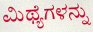
ಮಿಥ್ಯೆಗಳನ್ನು